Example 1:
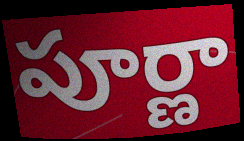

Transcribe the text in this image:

పూర్ణా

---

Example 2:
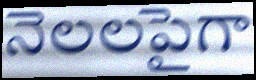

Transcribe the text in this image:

నెలలపైగా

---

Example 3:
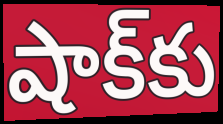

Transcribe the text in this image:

షాక్‌కు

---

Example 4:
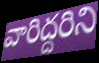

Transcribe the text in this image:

వారిద్దరిని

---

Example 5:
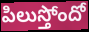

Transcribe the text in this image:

పిలుస్తోందో